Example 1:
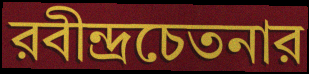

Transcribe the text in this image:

রবীন্দ্রচেতনার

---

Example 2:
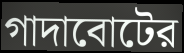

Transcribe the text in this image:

গাদাবোটের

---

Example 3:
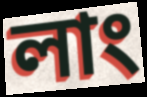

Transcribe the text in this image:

লাং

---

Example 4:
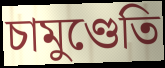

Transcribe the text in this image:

চামুণ্ডেতি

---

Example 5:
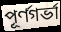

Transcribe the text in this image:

পূর্ণগর্ভা